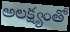
అలక్ష్యంతో